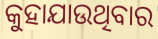
କୁହାଯାଉଥିବାର